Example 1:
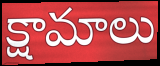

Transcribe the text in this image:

క్షామాలు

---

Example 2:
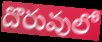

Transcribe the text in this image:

దొరువులో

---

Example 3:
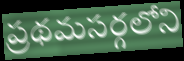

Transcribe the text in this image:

ప్రథమసర్గలోని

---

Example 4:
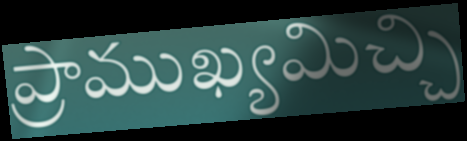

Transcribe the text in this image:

ప్రాముఖ్యమిచ్చి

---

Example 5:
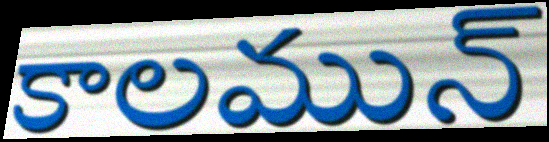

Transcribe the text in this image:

కాలమున్